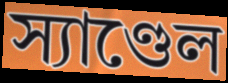
স্যাণ্ডেল